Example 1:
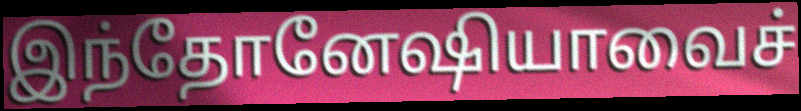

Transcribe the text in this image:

இந்தோனேஷியாவைச்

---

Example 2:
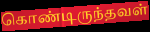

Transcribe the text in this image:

கொண்டிருந்தவள்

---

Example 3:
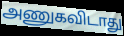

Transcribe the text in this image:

அணுகவிடாது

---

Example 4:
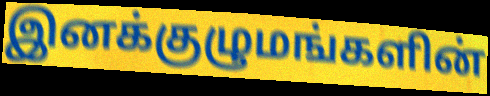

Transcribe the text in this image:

இனக்குழுமங்களின்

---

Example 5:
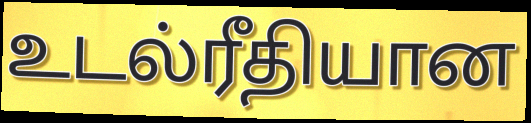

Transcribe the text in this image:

உடல்ரீதியான